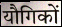
यौगिकों